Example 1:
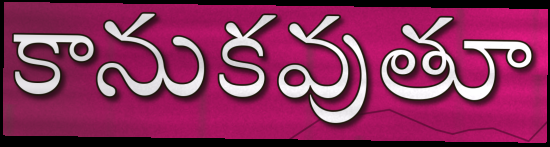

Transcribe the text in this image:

కానుకవుతూ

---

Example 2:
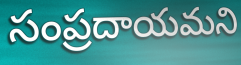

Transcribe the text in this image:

సంప్రదాయమని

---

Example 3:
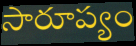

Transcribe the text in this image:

సారూప్యం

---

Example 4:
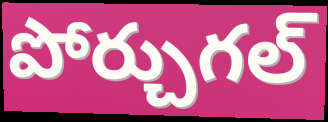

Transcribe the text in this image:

పోర్చుగల్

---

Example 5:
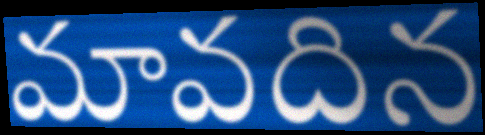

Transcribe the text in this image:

మావదిన